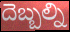
దెబ్బల్ని